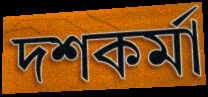
দশকর্মা